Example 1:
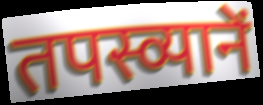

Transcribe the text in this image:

तपस्व्यानें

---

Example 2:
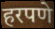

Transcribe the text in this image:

हरपणे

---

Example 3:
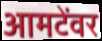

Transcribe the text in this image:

आमटेंवर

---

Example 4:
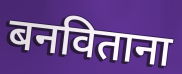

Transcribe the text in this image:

बनविताना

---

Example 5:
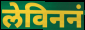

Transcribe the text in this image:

लेविननं